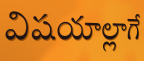
విషయాల్లాగే